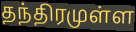
தந்திரமுள்ள